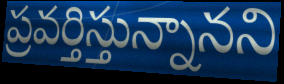
ప్రవర్తిస్తున్నానని